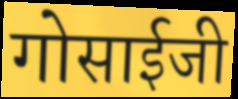
गोसाईजी